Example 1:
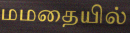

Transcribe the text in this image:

மமதையில்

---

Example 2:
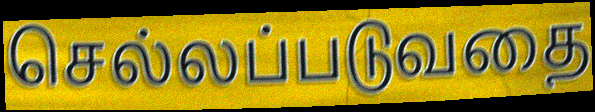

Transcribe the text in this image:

செல்லப்படுவதை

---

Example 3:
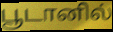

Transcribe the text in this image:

பூடானில்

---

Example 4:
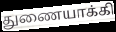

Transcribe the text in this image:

துணையாக்கி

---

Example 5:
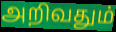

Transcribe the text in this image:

அறிவதும்